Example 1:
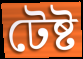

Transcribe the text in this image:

টেষ্ট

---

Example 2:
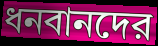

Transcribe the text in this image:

ধনবানদের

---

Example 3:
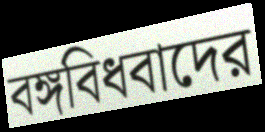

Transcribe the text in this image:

বঙ্গবিধবাদের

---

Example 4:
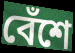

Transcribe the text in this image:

বেঁশে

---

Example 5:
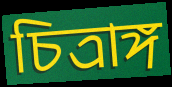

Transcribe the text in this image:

চিত্রাঙ্গ